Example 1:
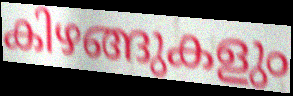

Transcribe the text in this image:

കിഴങ്ങുകളും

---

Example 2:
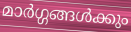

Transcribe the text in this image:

മാർഗ്ഗങ്ങൾക്കും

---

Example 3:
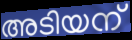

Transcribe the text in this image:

അടിയന്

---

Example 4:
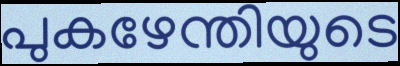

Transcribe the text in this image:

പുകഴേന്തിയുടെ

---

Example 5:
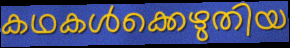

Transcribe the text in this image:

കഥകൾക്കെഴുതിയ